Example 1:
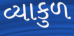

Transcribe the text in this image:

વ્યાકુળ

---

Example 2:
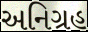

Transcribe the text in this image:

અનિગ્રહ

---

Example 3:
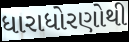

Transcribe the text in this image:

ધારાધોરણોથી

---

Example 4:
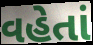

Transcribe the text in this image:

વહેતાં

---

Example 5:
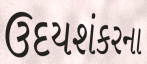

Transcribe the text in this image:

ઉદયશંકરના